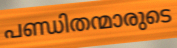
പണ്ഡിതന്മാരുടെ